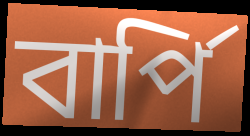
বার্পি